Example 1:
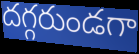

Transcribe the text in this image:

దగ్గరుండగా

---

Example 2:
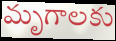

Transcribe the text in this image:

మృగాలకు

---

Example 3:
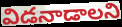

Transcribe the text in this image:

విడనాడాలని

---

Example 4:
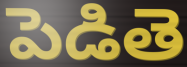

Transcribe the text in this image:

పెడితె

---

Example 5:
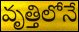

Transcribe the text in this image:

వృత్తిలోనే